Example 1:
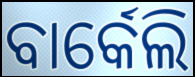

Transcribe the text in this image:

ବାର୍କେଲି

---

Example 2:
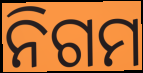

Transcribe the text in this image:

ନିଗମ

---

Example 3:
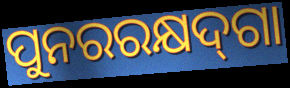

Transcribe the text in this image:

ପୁନରରକ୍ଷଦ୍‌ଗା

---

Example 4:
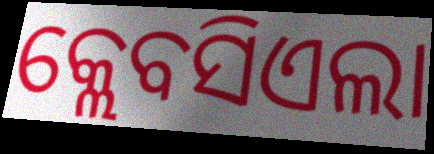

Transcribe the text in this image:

କ୍ଲେବସିଏଲା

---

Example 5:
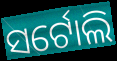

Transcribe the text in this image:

ସର୍ଟୋଲି